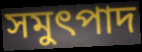
সমুৎপাদ